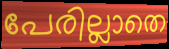
പേരില്ലാതെ